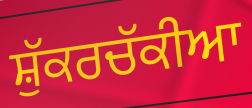
ਸ਼ੁੱਕਰਚੱਕੀਆ